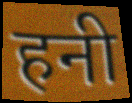
हनी